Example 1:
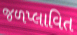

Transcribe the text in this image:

જળપ્લાવિત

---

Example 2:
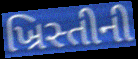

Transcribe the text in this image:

ખ્રિસ્તીની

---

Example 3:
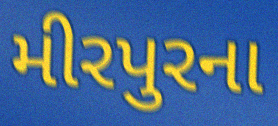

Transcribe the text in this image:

મીરપુરના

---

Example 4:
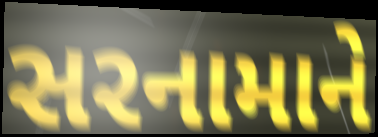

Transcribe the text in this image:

સરનામાને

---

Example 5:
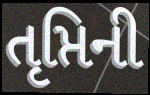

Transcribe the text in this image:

તૃપ્તિની